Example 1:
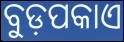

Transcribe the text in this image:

ବୁଡ଼ପକାଏ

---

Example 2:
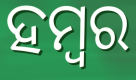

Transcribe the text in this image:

ହମ୍ବର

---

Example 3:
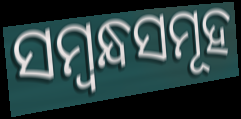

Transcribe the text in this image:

ସମ୍ୱନ୍ଧସମୂହ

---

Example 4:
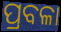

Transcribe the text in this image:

ପ୍ରବଳା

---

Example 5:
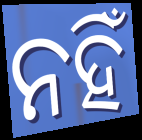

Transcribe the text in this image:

ନହିଁ